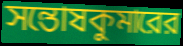
সন্তোষকুমারের